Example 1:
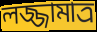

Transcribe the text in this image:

লজ্জামাত্র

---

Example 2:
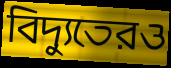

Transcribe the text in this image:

বিদ্যুতেরও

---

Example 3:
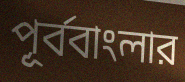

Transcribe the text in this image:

পূর্ববাংলার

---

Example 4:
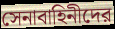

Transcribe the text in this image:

সেনাবাহিনীদের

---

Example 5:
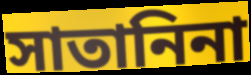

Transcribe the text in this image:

সাতানিনা